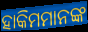
ହାକିମମାନଙ୍କ